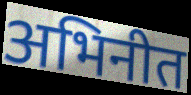
अभिनीत